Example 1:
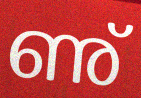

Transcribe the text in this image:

ണു്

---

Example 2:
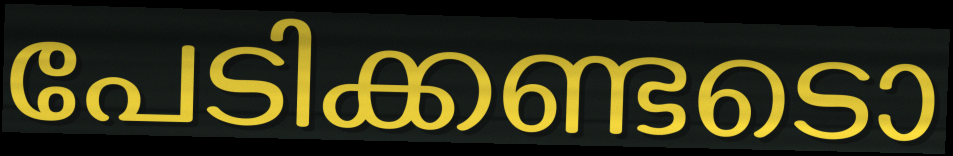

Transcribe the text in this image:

പേടിക്കണ്ടടൊ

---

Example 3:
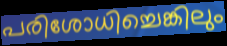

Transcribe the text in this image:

പരിശോധിച്ചെങ്കിലും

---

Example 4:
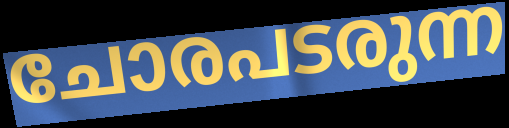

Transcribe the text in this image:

ചോരപടരുന്ന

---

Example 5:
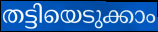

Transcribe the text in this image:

തട്ടിയെടുക്കാം